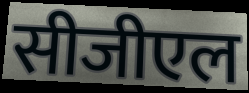
सीजीएल